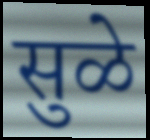
सुळे